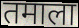
तमाला